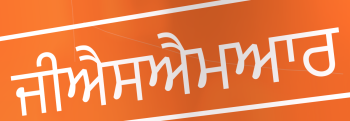
ਜੀਐਸਐਮਆਰ